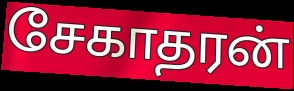
சேகாதரன்